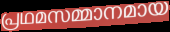
പ്രഥമസമ്മാനമായ